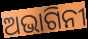
ଅଭାଗିନୀ